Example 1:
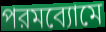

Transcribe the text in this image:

পরমব্যোমে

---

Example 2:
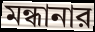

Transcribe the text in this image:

মন্ধানার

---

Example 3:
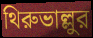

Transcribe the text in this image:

থিরুভাল্লুর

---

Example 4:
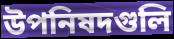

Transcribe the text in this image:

উপনিষদগুলি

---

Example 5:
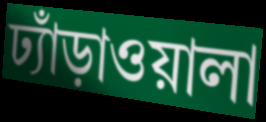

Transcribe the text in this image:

ঢ্যাঁড়াওয়ালা